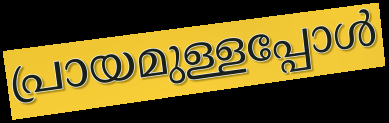
പ്രായമുള്ളപ്പോൾ